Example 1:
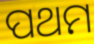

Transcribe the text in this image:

ପଥମ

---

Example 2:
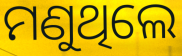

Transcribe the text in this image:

ମଣୁଥିଲେ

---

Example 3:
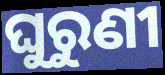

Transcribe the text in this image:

ଘୁରୁଣୀ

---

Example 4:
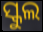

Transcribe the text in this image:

ସ୍କୁଲ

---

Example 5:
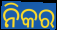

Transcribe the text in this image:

ନିକର